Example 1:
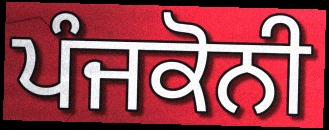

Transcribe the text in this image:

ਪੰਜਕੋਨੀ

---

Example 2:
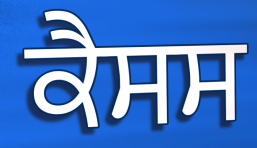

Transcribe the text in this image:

ਕੈਸਸ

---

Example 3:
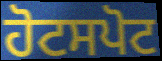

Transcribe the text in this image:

ਹੋਟਸਪੋਟ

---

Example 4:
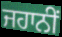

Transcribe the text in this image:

ਜਹਾਨੀਂ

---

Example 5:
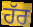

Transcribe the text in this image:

ਹੱਰ